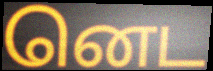
னெட